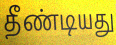
தீண்டியது